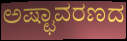
ಅಷ್ಟಾವರಣದ